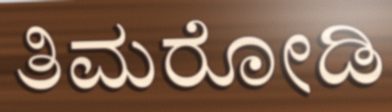
ತಿಮರೋಡಿ